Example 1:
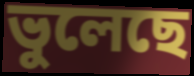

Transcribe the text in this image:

ভুলেছে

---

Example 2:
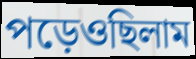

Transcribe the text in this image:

পড়েওছিলাম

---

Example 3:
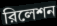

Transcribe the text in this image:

রিলেশন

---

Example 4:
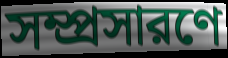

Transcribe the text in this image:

সম্প্রসারণে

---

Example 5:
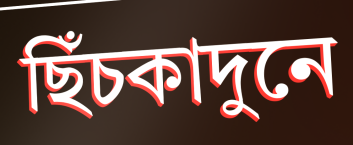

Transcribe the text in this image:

ছিঁচকাদুনে